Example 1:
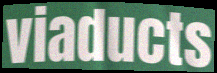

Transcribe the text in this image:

viaducts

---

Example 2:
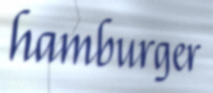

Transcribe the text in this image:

hamburger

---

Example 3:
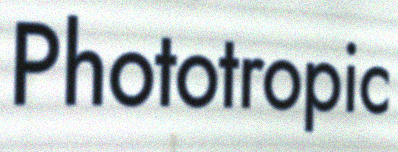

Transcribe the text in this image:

Phototropic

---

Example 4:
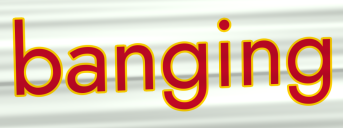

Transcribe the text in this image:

banging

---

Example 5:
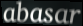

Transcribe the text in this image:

abasar